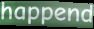
happend